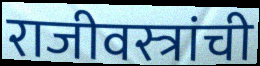
राजीवस्त्रांची